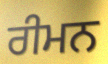
ਰੀਮਨ